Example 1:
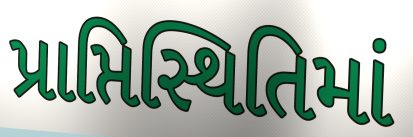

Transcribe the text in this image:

પ્રાપ્તિસ્થિતિમાં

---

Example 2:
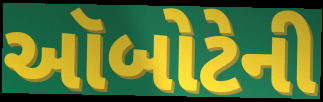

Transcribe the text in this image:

ઑબોટેની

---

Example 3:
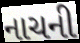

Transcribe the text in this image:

નાચની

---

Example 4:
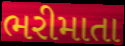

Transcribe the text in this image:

ભરીમાતા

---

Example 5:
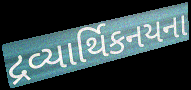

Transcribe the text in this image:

દ્રવ્યાર્થિકનયના